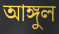
আঙ্গুল